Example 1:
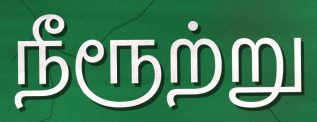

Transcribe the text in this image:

நீரூற்று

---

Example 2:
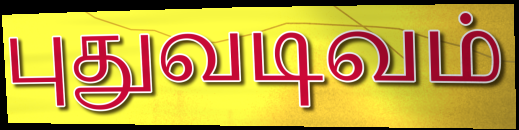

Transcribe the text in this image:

புதுவடிவம்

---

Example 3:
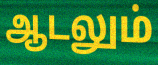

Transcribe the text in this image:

ஆடலும்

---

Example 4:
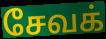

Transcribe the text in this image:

சேவக்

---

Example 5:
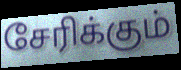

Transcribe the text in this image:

சேரிக்கும்